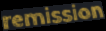
remission